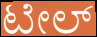
ಟೇಲ್